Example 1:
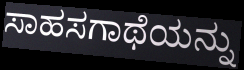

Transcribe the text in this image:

ಸಾಹಸಗಾಥೆಯನ್ನು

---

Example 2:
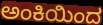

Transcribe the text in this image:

ಅಂಕಿಯಿಂದ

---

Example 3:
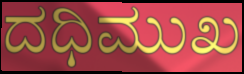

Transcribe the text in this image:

ದಧಿಮುಖ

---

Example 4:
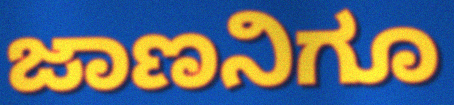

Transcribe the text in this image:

ಜಾಣನಿಗೂ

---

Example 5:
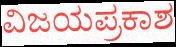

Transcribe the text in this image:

ವಿಜಯಪ್ರಕಾಶ